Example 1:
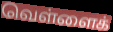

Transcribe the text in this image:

வெள்ளைக்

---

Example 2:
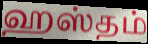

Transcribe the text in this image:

ஹஸ்தம்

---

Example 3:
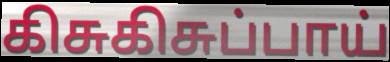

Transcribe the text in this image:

கிசுகிசுப்பாய்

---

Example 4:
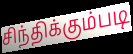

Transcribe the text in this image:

சிந்திக்கும்படி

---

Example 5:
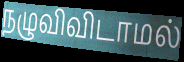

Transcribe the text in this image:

நழுவிவிடாமல்